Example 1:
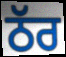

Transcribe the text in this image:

ਠੱਰ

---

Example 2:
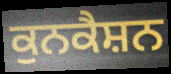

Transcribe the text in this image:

ਕੁਨਕੈਸ਼ਨ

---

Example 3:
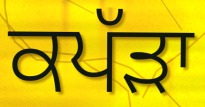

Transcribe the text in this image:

ਕਪੱੜਾ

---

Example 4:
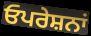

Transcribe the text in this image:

ਓਪਰੇਸ਼ਨਾਂ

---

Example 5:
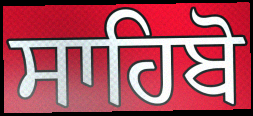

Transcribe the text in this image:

ਸਾਹਿਬੋ